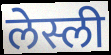
लेस्ली